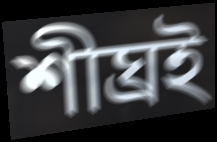
শীঘ্ৰই